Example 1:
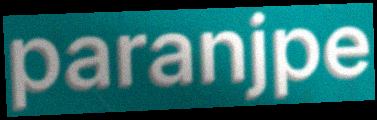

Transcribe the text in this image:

paranjpe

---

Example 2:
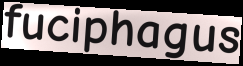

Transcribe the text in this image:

fuciphagus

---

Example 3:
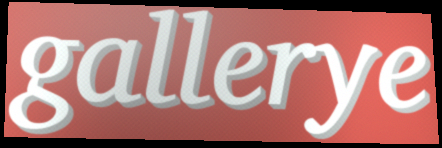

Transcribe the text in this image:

gallerye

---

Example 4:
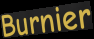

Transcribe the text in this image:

Burnier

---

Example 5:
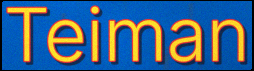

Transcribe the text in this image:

Teiman